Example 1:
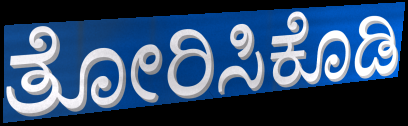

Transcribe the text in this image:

ತೋರಿಸಿಕೊಡಿ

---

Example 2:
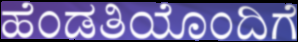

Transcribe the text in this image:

ಹೆಂಡತಿಯೊಂದಿಗೆ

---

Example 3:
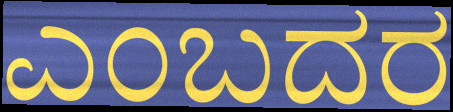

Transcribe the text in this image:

ಎಂಬದರ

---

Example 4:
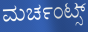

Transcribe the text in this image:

ಮರ್ಚಂಟ್ಸ್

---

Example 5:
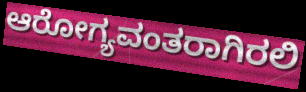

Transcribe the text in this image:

ಆರೋಗ್ಯವಂತರಾಗಿರಲಿ